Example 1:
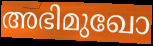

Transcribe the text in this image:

അഭിമുഖോ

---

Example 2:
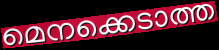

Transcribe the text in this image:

മെനക്കെടാത്ത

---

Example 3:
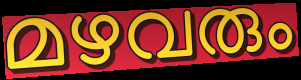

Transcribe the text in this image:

മഴവരും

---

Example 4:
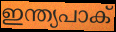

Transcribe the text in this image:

ഇന്ത്യപാക്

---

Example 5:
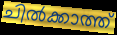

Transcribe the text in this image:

ചിൽക്കാത്ത്